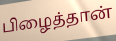
பிழைத்தான்